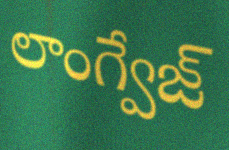
లాంగ్వేజ్